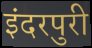
इंदरपुरी